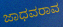
ಜಾಧವರಾವ